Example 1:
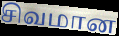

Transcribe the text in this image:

சிவமான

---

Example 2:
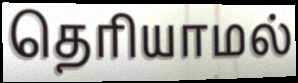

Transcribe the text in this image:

தெரியாமல்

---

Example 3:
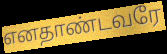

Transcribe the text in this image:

எனதாண்டவரே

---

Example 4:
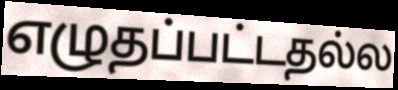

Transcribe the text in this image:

எழுதப்பட்டதல்ல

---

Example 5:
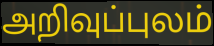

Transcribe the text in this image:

அறிவுப்புலம்